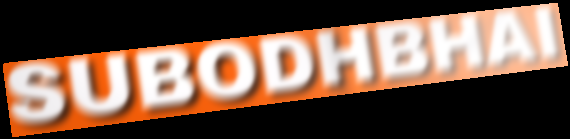
SUBODHBHAI